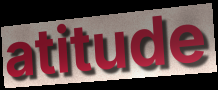
atitude